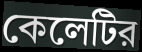
কেলেটির